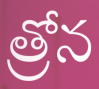
త్రోన